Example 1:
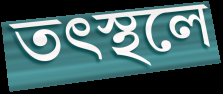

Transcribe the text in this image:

তৎস্থলে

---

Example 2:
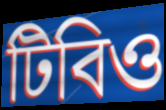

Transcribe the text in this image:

টিবিও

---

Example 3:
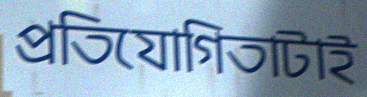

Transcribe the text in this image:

প্রতিযোগিতাটাই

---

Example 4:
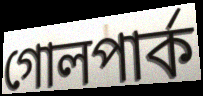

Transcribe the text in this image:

গোলপার্ক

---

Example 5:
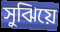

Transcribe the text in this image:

সুঝিয়ে